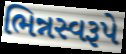
ભિન્નસ્વરૂપે